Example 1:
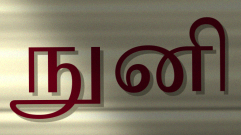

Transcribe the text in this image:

நுனி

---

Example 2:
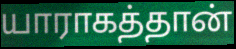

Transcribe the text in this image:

யாராகத்தான்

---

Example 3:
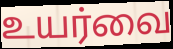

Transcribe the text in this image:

உயர்வை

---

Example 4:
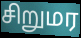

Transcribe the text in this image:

சிறுமர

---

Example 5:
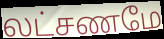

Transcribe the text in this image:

லட்சணமே